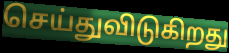
செய்துவிடுகிறது